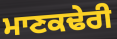
ਮਾਣਕਢੇਰੀ